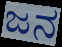
ಜನ